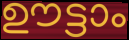
ഊട്ടാം